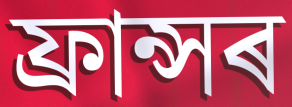
ফ্ৰান্সৰ